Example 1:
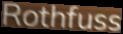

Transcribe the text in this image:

Rothfuss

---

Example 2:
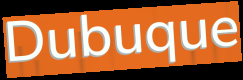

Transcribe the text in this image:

Dubuque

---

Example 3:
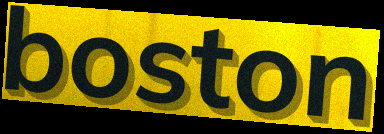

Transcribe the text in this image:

boston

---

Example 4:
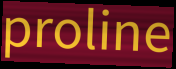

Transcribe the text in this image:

proline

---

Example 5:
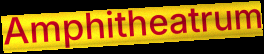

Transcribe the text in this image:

Amphitheatrum